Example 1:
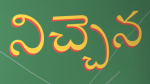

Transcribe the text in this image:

నిచ్చెన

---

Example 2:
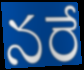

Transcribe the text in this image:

నరే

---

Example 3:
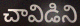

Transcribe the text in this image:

చావిడిని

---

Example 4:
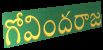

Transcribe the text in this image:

గోవిందరాజ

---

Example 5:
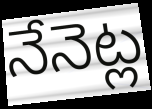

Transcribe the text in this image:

నేనెట్ల